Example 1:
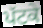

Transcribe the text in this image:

ਪੱਟਕੇ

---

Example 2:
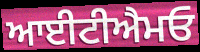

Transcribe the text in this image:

ਆਈਟੀਐਮਓ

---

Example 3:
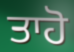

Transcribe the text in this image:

ਤਾਹੋ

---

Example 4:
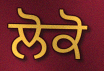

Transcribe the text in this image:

ਲੋਕੋ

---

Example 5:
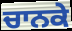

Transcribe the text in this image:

ਚਾਨਕੇ